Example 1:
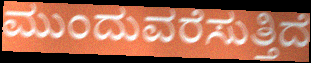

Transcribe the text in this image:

ಮುಂದುವರೆಸುತ್ತಿದೆ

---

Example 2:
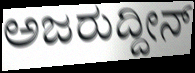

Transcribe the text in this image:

ಅಜರುದ್ದೀನ್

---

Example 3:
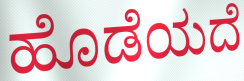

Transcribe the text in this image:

ಹೊಡೆಯದೆ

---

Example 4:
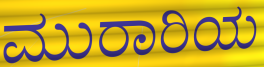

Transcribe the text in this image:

ಮುರಾರಿಯ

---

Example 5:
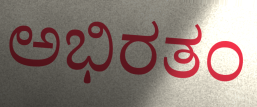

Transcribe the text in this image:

ಅಭಿರತಂ